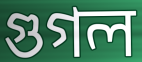
গুগল